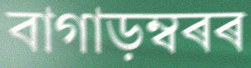
বাগাড়ম্বৰৰ